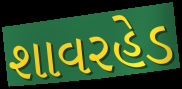
શાવરહેડ